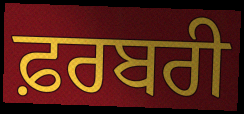
ਫ਼ਰਬਰੀ